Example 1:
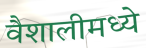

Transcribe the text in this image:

वैशालीमध्ये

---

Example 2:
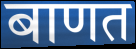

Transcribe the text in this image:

बाणत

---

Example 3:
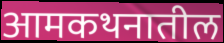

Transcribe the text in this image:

आमकथनातील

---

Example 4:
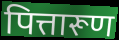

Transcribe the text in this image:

पित्तारूण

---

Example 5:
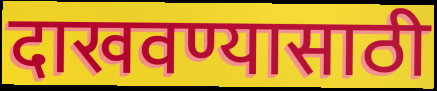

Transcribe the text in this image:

दाखवण्यासाठी